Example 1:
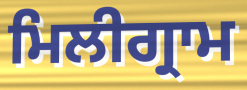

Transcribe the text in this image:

ਮਿਲੀਗ੍ਰਾਮ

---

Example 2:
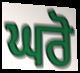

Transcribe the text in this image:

ਘਰੋ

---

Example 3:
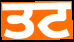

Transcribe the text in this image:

ਤਟ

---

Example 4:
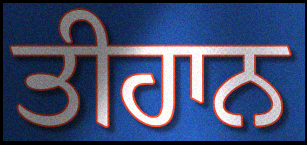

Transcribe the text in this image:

ਤੀਹਾਨ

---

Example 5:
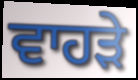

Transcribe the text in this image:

ਵਾਹੜੇ